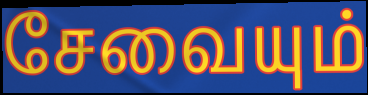
சேவையும்